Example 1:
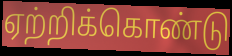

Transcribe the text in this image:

ஏற்றிக்கொண்டு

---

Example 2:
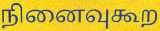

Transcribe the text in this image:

நினைவுகூற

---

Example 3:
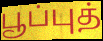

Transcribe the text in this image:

பூப்புத்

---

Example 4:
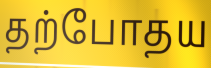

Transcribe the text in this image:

தற்போதய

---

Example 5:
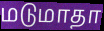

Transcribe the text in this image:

மடுமாதா